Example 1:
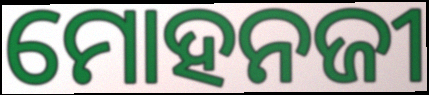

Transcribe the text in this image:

ମୋହନଜୀ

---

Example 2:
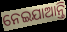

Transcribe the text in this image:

ନେଇଯାଆନ୍ତି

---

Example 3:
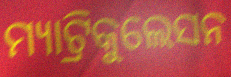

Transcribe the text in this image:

ମ୍ୟାଟ୍ରିକୁଲେସନ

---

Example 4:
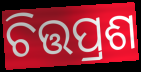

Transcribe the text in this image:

ଚିତ୍ତପ୍ରଶ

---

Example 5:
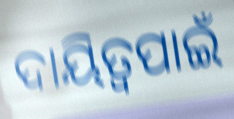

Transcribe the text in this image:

ଦାୟିତ୍ୱପାଇଁ